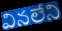
వినలేని